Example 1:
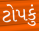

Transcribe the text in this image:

ટોપકું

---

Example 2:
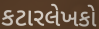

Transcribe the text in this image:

કટારલેખકો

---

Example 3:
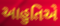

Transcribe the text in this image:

આહુતિએ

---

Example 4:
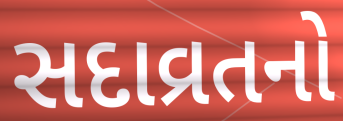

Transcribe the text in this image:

સદાવ્રતનો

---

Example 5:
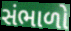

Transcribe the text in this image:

સંભાળો